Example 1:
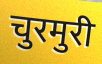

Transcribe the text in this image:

चुरमुरी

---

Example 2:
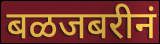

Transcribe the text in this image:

बळजबरीनं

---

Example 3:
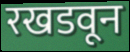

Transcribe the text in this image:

रखडवून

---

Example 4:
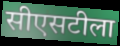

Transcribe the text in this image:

सीएसटीला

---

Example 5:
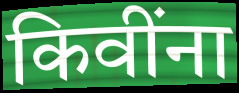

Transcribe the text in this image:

किवींना